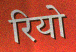
रियो